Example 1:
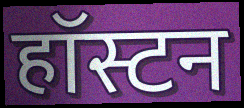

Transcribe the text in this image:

हॉस्टन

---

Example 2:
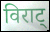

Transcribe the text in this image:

विराट्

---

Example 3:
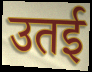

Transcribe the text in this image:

उतई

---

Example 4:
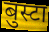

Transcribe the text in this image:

बुस्टा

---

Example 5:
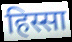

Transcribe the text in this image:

हिस्सा